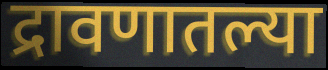
द्रावणातल्या